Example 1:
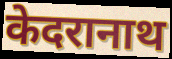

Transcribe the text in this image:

केदरानाथ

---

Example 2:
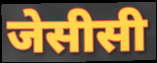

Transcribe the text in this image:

जेसीसी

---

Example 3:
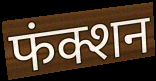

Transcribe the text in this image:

फंक्शन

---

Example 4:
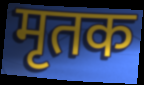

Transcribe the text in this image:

मृतक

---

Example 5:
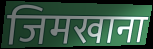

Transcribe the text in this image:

जिमखाना